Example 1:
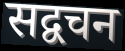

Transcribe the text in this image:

सद्वचन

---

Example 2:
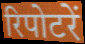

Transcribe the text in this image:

रिपोटरें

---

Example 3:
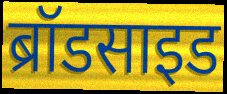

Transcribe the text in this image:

ब्रॉडसाइड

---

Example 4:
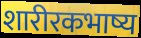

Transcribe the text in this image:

शारीरकभाष्य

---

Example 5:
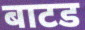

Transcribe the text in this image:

बाटड